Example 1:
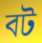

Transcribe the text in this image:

বট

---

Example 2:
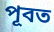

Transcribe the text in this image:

পূবত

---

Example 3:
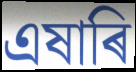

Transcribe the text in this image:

এষাৰি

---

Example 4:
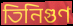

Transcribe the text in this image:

তিনিগুণ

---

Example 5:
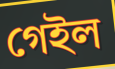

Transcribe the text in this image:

গেইল